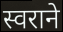
स्वराने